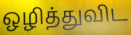
ஒழித்துவிட